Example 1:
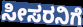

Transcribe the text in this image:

ಸೀಸರನಿಗೆ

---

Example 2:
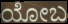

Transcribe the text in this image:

ಯೋಬ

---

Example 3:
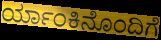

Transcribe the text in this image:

ರ್ಯಾಂಕಿನೊಂದಿಗೆ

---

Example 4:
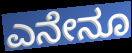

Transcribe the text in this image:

ಎನೇನೂ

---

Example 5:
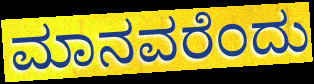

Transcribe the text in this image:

ಮಾನವರೆಂದು